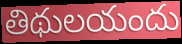
తిథులయందు